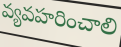
వ్యవహరించాలి